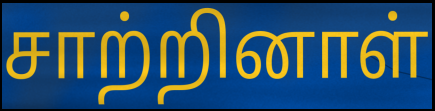
சாற்றினாள்